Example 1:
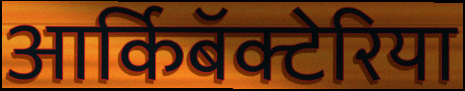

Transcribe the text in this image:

आर्किबॅक्टेरिया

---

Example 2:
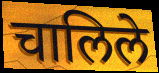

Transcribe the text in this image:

चालिले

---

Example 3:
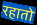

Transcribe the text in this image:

रहातो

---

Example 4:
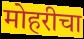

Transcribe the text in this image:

मोहरीचा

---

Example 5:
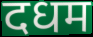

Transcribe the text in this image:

दधम